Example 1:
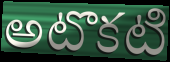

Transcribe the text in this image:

అటొకటి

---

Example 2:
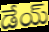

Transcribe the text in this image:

డేయ్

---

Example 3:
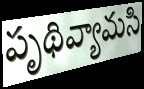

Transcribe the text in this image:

పృథివ్యామసి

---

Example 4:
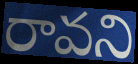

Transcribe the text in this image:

రావని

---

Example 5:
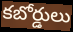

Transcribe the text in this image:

కబోర్డులు